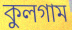
কুলগাম